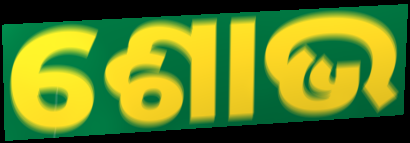
ଶୋଭ